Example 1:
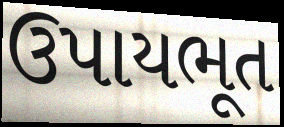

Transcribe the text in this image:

ઉપાયભૂત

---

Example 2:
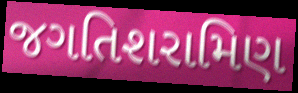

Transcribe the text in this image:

જગતિશરામિણ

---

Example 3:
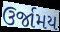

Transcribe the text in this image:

ઉર્જામય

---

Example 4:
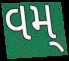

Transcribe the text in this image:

વમ્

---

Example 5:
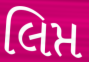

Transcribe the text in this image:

લિપ્ત